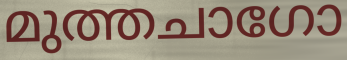
മുത്തചാഗോ